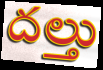
దల్తు